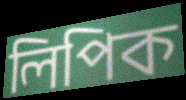
লিপিক